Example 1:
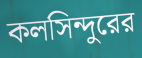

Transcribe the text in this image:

কলসিন্দুরের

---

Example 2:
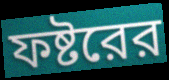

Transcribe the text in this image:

ফষ্টরের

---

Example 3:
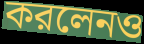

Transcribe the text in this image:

করলেনও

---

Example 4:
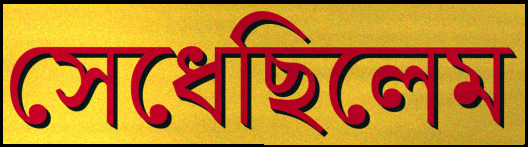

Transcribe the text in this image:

সেধেছিলেম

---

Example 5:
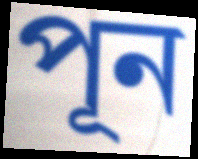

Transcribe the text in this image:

পূন